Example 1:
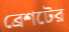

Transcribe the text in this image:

ব্রেশটের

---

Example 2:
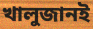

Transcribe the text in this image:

খালুজানই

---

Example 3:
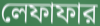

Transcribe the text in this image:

লেফাফার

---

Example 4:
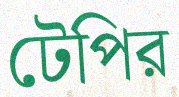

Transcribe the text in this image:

টেপির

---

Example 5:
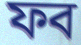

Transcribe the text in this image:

ফব